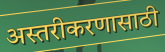
अस्तरीकरणासाठी